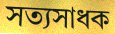
সত্যসাধক